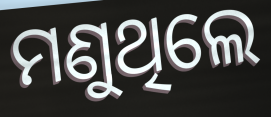
ମଣୁଥିଲେ